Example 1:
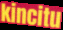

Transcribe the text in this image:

kincitu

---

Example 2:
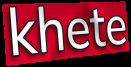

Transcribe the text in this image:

khete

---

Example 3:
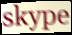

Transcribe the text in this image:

skype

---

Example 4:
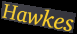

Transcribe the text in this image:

Hawkes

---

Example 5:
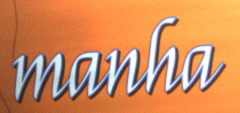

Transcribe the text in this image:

manha